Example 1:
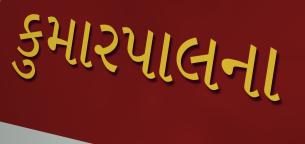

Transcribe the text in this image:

કુમારપાલના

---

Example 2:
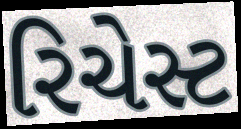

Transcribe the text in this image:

રિચેસ્ટ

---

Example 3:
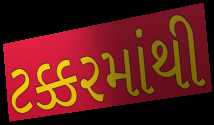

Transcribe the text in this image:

ટક્કરમાંથી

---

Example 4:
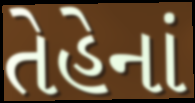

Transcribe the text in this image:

તેહેનાં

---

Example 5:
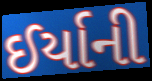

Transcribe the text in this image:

ઈર્યાની